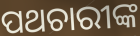
ପଥଚାରୀଙ୍କ